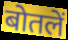
बोतलें